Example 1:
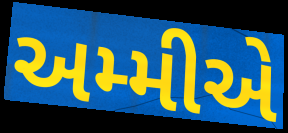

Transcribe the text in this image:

અમ્મીએ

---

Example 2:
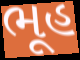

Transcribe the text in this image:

ભૂહ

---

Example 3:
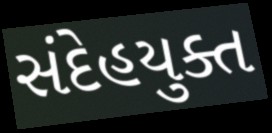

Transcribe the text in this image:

સંદેહયુક્ત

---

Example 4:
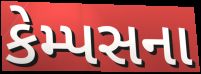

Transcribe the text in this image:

કેમ્પસના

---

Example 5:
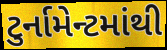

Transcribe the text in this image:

ટુર્નામેન્ટમાંથી